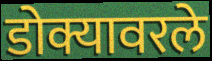
डोक्यावरले